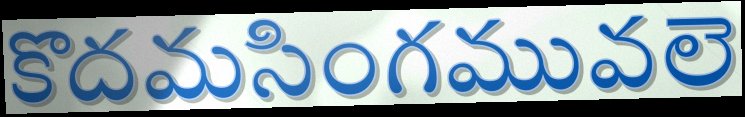
కొదమసింగమువలె